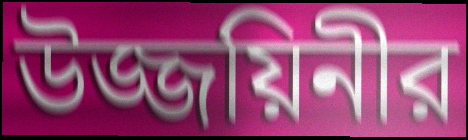
উজ্জয়িনীর